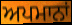
ਅਪਮਾਨਾਂ